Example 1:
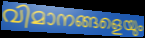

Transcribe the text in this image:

വിമാനങ്ങളെയും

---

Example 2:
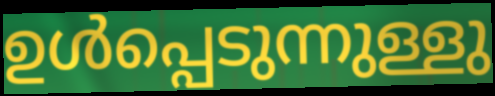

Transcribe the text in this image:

ഉൾപ്പെടുന്നുള്ളു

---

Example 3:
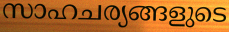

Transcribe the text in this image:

സാഹചര്യങ്ങളുടെ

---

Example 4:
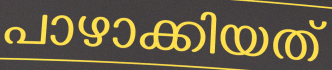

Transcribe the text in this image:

പാഴാക്കിയത്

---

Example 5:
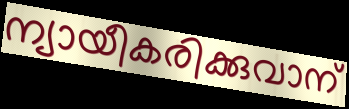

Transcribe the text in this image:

ന്യായീകരിക്കുവാന്